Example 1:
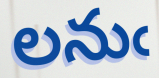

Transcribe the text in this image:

లనుఁ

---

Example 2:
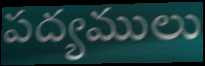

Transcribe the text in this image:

పద్యములు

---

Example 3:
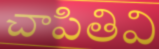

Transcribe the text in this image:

చాపితివి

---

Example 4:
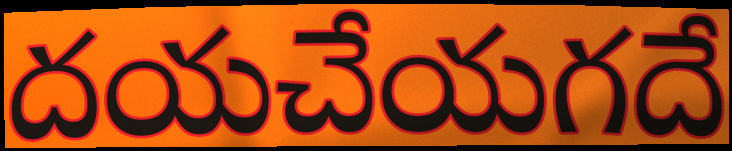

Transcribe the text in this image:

దయచేయగదే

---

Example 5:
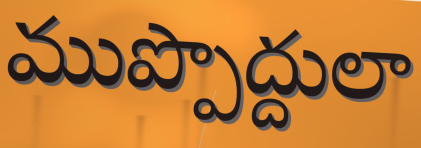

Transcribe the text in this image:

ముప్పొద్దులా